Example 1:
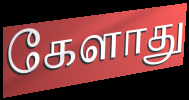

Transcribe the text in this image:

கேளாது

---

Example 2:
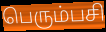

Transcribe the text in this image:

பெரும்பசி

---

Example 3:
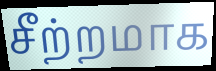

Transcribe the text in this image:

சீற்றமாக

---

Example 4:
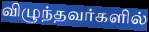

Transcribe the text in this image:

விழுந்தவர்களில்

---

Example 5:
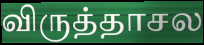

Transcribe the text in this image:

விருத்தாசல